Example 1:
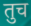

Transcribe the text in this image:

तुच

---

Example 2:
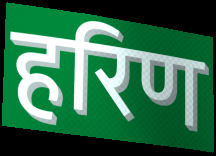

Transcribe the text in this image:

हरिण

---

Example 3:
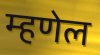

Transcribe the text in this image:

म्हणेल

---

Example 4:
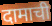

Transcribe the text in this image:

दामाची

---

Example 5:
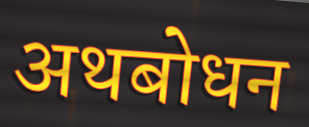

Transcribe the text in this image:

अथबोधन